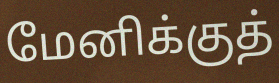
மேனிக்குத்